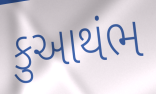
કુઆથંભ